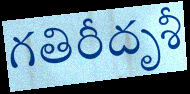
గతిరీదృశీ